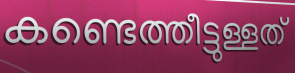
കണ്ടെത്തീട്ടുള്ളത്